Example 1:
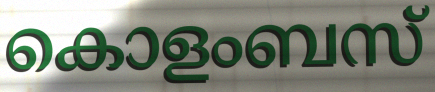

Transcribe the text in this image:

കൊളംബസ്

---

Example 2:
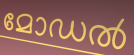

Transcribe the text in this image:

മോഡൽ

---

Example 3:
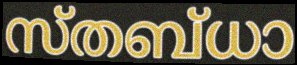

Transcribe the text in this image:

സ്തബ്ധാ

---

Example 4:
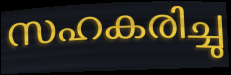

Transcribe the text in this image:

സഹകരിച്ചു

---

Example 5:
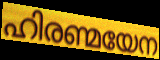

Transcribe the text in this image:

ഹിരണ്മയേന